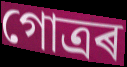
গোত্ৰৰ